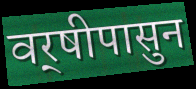
वर्षीपासुन